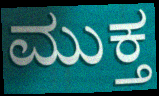
ಮುಕ್ತ